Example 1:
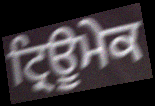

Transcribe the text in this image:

ਟ੍ਰਿਊਮੇਕ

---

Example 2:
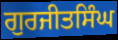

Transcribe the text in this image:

ਗੁਰਜੀਤਸਿੰਘ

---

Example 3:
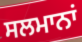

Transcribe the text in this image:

ਸਲਮਾਨਾਂ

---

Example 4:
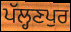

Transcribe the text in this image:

ਪੱਲ੍ਹਣਪੁਰ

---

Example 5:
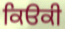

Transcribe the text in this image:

ਕਿੳਕੀ